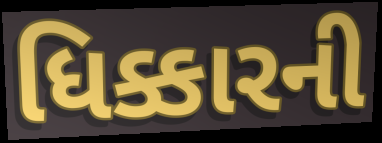
ધિક્કારની